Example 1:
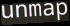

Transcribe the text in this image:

unmap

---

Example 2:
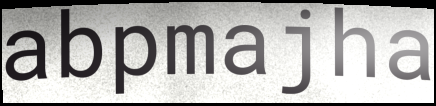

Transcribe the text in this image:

abpmajha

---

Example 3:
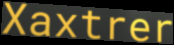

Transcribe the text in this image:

Xaxtrer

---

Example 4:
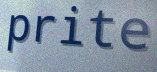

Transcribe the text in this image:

prite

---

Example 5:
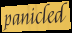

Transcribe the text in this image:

panicled